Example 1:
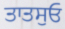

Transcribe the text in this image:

ਤਾਤਸੁਓ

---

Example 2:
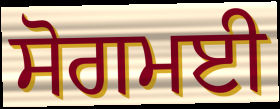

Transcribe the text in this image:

ਸੋਗਮਈ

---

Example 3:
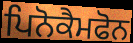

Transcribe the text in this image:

ਪਿਨੋਕੈਮਫੋਨ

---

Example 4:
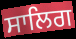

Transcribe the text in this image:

ਸਾਲਿਗ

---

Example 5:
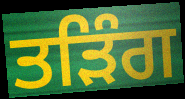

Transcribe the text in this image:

ਤੜਿੰਗ